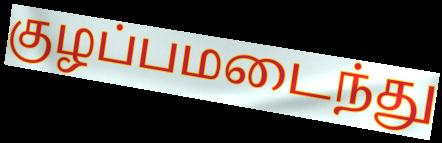
குழப்பமடைந்து